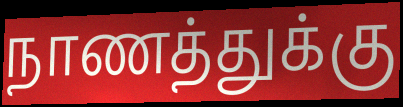
நாணத்துக்கு